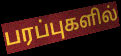
பரப்புகளில்